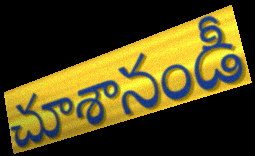
చూశానండీ